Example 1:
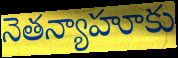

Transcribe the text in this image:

నెతన్యాహూకు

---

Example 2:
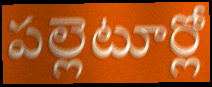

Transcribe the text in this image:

పల్లెటూర్లో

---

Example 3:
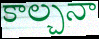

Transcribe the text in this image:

కాల్చనా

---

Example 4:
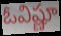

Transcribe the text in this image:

ఓవిష్ణూ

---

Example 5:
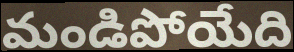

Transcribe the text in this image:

మండిపోయేది